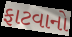
ફાટવાનો